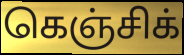
கெஞ்சிக்